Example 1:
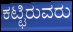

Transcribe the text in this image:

ಕಟ್ಟಿರುವರು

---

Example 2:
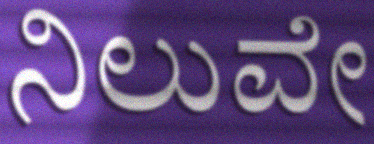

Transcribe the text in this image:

ನಿಲುವೇ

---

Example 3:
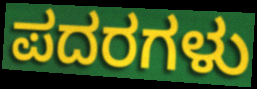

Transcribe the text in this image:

ಪದರಗಳು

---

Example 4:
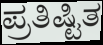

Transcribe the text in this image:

ಪ್ರತಿಷ್ಟಿತ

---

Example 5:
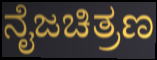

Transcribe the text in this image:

ನೈಜಚಿತ್ರಣ